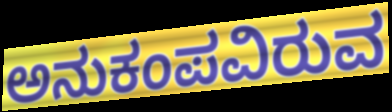
ಅನುಕಂಪವಿರುವ